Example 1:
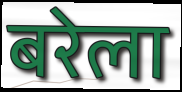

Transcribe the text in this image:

बरेला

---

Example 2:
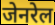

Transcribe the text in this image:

जेनरेल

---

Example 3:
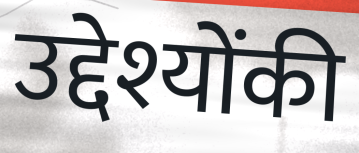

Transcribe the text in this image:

उद्देश्योंकी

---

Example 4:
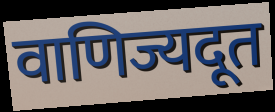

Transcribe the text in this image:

वाणिज्यदूत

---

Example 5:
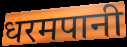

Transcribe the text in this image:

धरमपानी